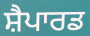
ਸ਼ੈਪਾਰਡ